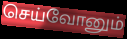
செய்வோனும்